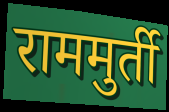
राममुर्ती